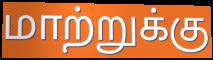
மாற்றுக்கு